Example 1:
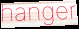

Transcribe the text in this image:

hanger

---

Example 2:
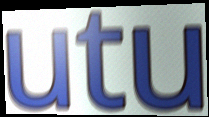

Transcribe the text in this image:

utu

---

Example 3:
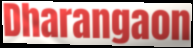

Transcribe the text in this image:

Dharangaon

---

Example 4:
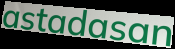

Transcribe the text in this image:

astadasan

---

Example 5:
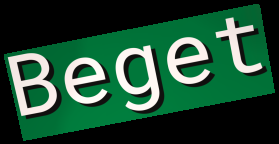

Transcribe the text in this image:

Beget